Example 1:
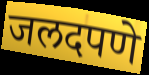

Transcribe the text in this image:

जलदपणे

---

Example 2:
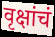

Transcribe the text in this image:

वृक्षांचं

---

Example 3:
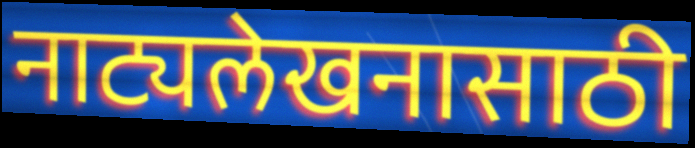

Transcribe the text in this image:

नाट्यलेखनासाठी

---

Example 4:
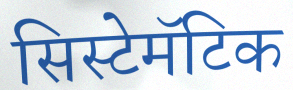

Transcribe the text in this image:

सिस्टेमॅटिक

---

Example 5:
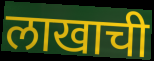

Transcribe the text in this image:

लाखाची